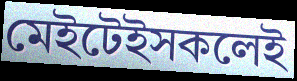
মেইটেইসকলেই